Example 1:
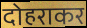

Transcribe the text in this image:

दोहराकर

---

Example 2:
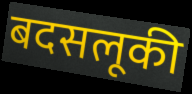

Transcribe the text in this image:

बदसलूकी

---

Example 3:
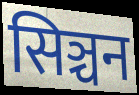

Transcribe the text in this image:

सिञ्चन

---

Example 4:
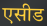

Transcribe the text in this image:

एसीड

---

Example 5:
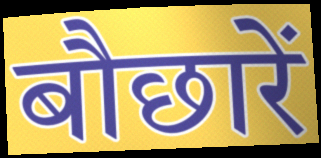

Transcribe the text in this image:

बौछारें